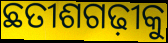
ଛତୀଶଗଢ଼ୀକୁ